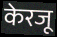
केरजू